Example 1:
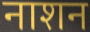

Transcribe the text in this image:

नाशन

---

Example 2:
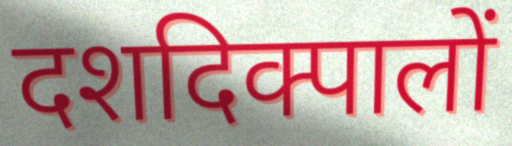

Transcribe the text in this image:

दशदिक्पालों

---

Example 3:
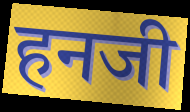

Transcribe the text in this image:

हनजी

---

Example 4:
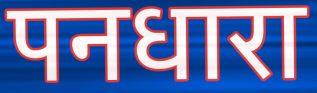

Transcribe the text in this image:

पनधारा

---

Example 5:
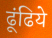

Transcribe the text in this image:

ढूंढिये